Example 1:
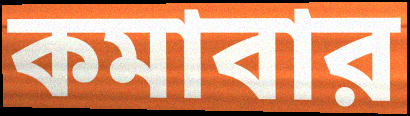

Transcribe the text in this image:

কমাবার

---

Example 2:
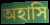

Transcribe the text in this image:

অহাসি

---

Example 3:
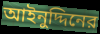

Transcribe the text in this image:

আইনুদ্দিনের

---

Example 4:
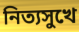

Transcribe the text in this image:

নিত্যসুখে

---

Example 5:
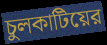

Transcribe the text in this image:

চুলকাটিয়ের